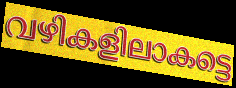
വഴികളിലാകട്ടെ